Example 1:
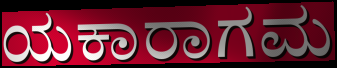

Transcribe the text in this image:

ಯಕಾರಾಗಮ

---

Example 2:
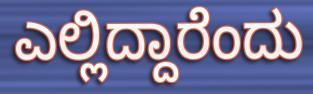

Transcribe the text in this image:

ಎಲ್ಲಿದ್ದಾರೆಂದು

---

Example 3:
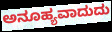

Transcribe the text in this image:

ಅನೂಹ್ಯವಾದುದು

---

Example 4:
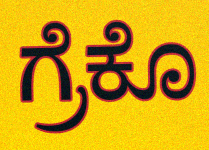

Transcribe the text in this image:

ಗ್ರೆಕೊ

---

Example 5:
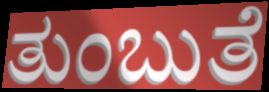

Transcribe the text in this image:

ತುಂಬುತೆ